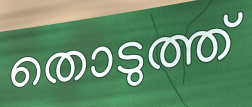
തൊടുത്ത്